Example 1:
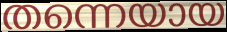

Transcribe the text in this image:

തന്നെയായ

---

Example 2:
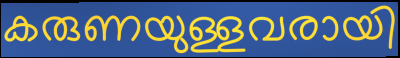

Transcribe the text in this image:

കരുണയുള്ളവരായി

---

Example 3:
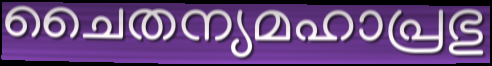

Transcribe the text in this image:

ചൈതന്യമഹാപ്രഭു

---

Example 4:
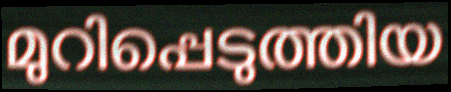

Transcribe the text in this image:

മുറിപ്പെടുത്തിയ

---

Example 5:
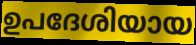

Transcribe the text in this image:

ഉപദേശിയായ